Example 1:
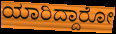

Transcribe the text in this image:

ಯಾರಿದ್ದಾರೋ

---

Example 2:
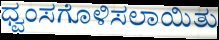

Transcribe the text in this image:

ಧ್ವಂಸಗೊಳಿಸಲಾಯಿತು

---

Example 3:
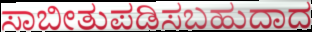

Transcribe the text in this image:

ಸಾಬೀತುಪಡಿಸಬಹುದಾದ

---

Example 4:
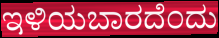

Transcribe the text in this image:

ಇಳಿಯಬಾರದೆಂದು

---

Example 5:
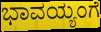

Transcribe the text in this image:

ಭಾವಯ್ಯಂಗೆ